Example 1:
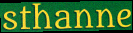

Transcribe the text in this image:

sthanne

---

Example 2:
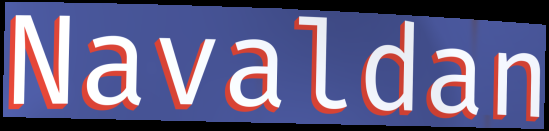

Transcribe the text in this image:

Navaldan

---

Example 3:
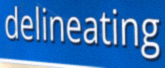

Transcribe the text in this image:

delineating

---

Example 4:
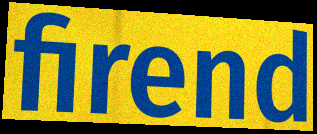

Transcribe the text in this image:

firend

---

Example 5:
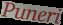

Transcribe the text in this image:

Puneri